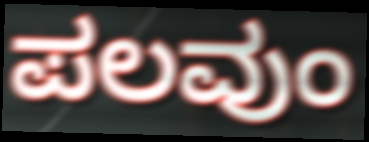
ಪಲವುಂ